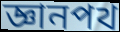
জ্ঞানপথ